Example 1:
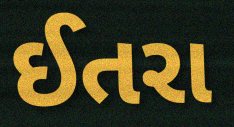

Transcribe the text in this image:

ઈતરા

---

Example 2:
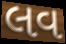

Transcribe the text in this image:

લવ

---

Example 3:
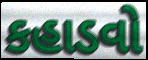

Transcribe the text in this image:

કહાડવો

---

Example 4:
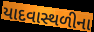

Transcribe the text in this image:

યાદવાસ્થળીના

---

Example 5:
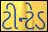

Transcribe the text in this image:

ટીન્ટેડ